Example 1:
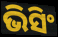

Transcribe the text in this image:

ଭିସିଂ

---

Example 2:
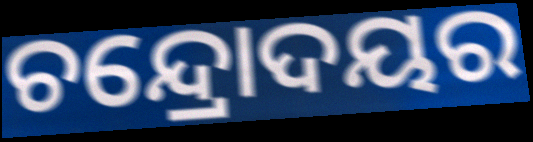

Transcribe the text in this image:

ଚନ୍ଦ୍ରୋଦୟର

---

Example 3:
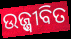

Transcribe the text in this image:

ଉଜ୍ଜ୍ୱୀବିତ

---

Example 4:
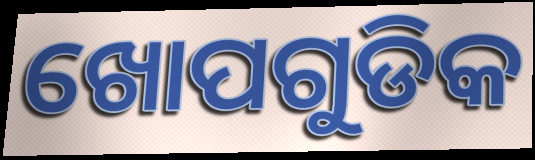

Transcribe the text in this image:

ଖୋପଗୁଡିକ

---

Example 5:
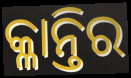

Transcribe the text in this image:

କ୍ଳାନ୍ତିର